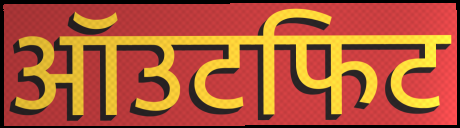
ऑउटफिट